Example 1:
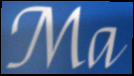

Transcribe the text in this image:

Ma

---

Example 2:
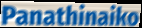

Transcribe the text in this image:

Panathinaiko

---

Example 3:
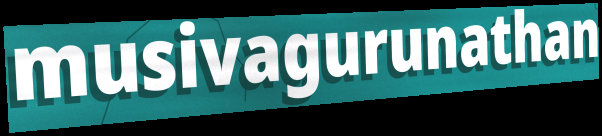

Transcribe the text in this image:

musivagurunathan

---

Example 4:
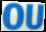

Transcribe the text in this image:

OU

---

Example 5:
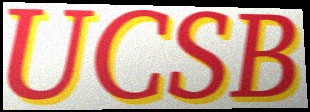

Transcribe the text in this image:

UCSB